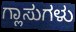
ಗ್ಲಾಸುಗಳು